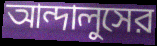
আন্দালুসের